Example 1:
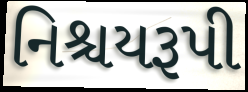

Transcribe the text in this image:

નિશ્ચયરૂપી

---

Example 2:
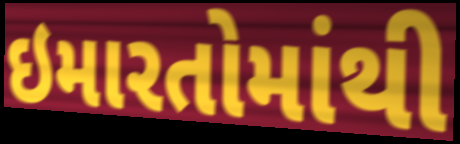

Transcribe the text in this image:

ઇમારતોમાંથી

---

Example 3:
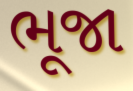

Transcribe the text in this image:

ભૂજા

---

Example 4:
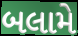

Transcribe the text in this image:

બલામે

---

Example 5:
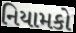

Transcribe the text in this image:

નિયામકો